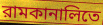
রামকানালিতে